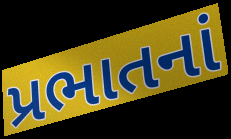
પ્રભાતનાં